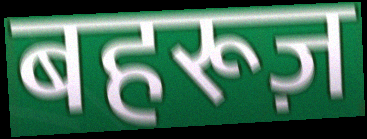
बहरूज़